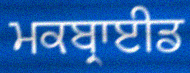
ਮਕਬ੍ਰਾਈਡ